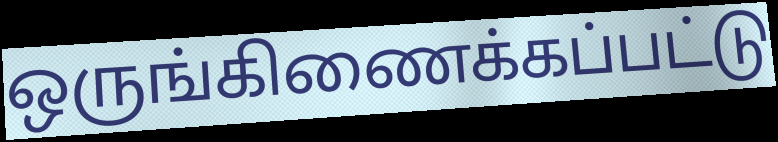
ஒருங்கிணைக்கப்பட்டு